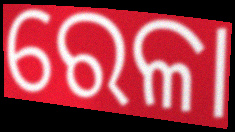
ରେଳା